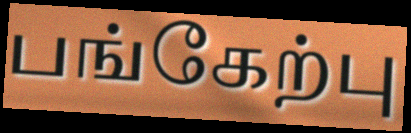
பங்கேற்பு